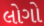
લોગો